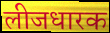
लीजधारक